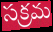
సక్రమ